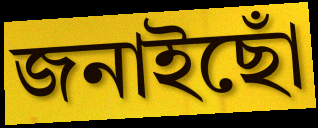
জনাইছোঁ